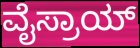
ವೈಸ್ರಾಯ್